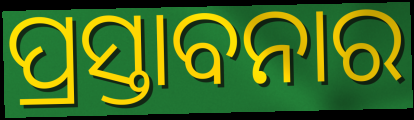
ପ୍ରସ୍ତାବନାର